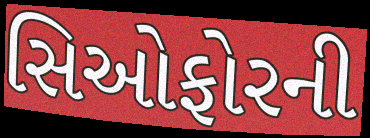
સિઓફોરની